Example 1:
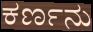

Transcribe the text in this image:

ಕರ್ಣನು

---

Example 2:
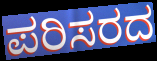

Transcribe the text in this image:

ಪರಿಸರದ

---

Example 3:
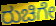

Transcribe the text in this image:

ರುಚಿಗೇ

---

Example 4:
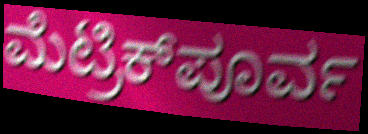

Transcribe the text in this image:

ಮೆಟ್ರಿಕ್‌ಪೂರ್ವ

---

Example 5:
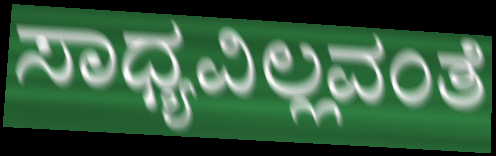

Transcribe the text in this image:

ಸಾಧ್ಯವಿಲ್ಲವಂತೆ